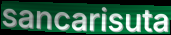
sancarisuta